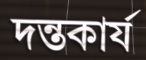
দন্তকার্য